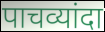
पाचव्यांदा